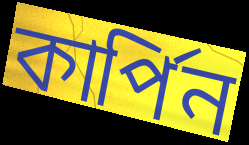
কার্পিন